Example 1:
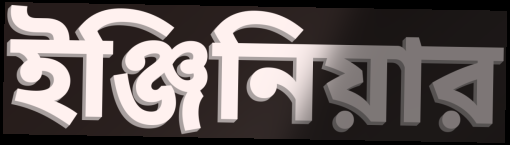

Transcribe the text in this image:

ইঞ্জিনিয়ার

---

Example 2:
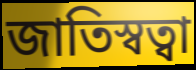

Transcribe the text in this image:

জাতিস্বত্বা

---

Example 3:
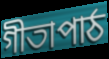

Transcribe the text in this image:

গীতাপাঠ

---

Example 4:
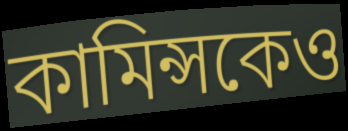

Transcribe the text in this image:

কামিন্সকেও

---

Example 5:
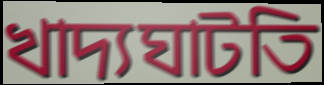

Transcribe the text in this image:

খাদ্যঘাটতি